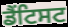
ਡੈਂਟਿਸਟ